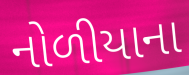
નોળીયાના